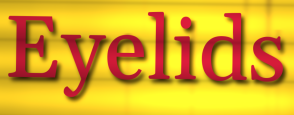
Eyelids